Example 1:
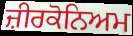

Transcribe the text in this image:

ਜ਼ੀਰਕੋਨਿਅਮ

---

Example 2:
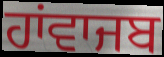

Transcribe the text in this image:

ਹਾਂਵਾਜਬ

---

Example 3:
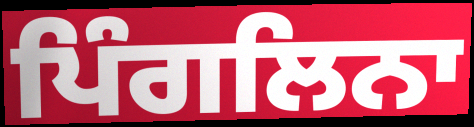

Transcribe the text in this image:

ਪਿੰਗਲਿਨਾ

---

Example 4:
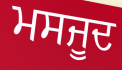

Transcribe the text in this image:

ਮਸਜੂਦ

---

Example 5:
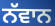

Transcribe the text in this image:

ਨੱਵਾਨ